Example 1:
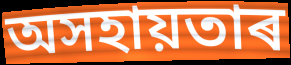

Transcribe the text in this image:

অসহায়তাৰ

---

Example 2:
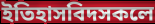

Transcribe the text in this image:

ইতিহাসবিদসকলে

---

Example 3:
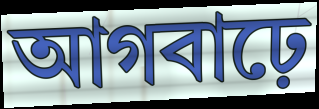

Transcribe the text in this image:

আগবাঢ়ে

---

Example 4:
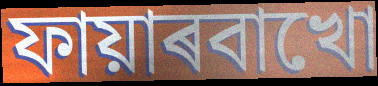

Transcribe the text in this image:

ফায়াৰবাখো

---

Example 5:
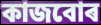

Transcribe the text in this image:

কাজবোৰ